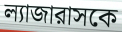
ল্যাজারাসকে